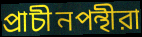
প্রাচীনপন্থীরা